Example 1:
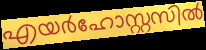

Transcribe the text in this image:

എയർഹോസ്റ്റസിൽ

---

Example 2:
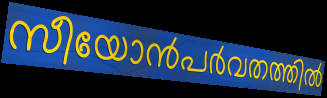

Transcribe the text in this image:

സീയോൻപർവതത്തിൽ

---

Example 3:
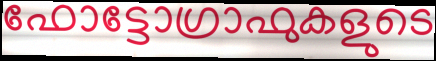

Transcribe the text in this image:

ഫോട്ടോഗ്രാഫുകളുടെ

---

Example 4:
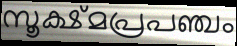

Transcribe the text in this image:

സൂക്ഷ്മപ്രപഞ്ചം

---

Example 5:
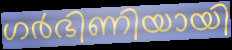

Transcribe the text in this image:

ഗർഭിണിയായി